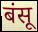
बंसू